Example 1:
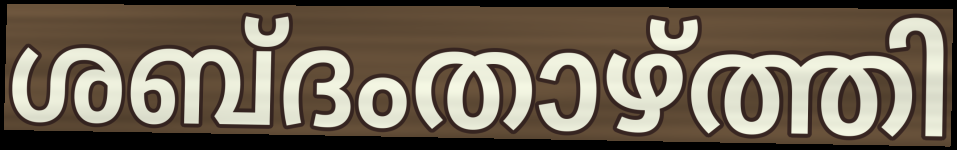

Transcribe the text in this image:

ശബ്ദംതാഴ്ത്തി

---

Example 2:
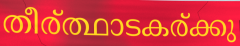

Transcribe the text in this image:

തീര്ത്ഥാടകര്ക്കു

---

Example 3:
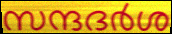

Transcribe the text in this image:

സന്ദദർശ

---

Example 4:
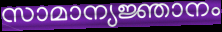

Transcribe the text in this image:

സാമാന്യജ്ഞാനം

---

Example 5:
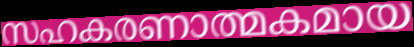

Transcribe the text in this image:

സഹകരണാത്മകമായ